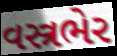
વસ્ત્રભેર